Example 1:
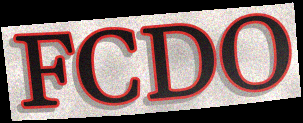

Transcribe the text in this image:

FCDO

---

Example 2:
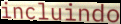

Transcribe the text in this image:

incluindo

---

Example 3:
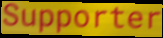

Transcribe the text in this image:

Supporter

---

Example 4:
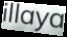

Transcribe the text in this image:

illaya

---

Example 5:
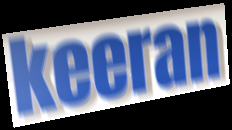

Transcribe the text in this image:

keeran